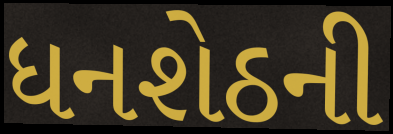
ધનશેઠની